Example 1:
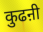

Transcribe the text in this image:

कुढऩी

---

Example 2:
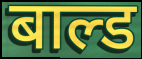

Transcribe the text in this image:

बाल्ड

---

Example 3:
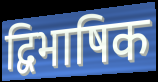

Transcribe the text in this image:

द्विभाषिक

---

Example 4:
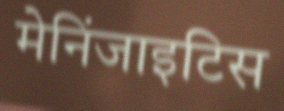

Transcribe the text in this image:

मेनिंजाइटिस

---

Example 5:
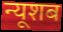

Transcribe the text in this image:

न्यूशब